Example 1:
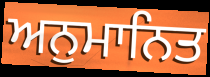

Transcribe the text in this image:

ਅਨੁਮਾਨਿਤ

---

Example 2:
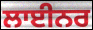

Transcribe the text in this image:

ਲਾਈਨਰ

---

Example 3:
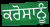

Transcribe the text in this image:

ਕਰੋਸਾਨੂੰ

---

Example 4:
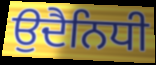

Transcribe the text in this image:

ਉਦੈਨਿਧੀ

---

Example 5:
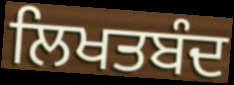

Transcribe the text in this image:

ਲਿਖਤਬੰਦ